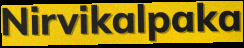
Nirvikalpaka